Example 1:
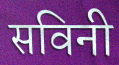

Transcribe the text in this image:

सविनी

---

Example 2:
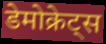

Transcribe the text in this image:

डेमोक्रेट्स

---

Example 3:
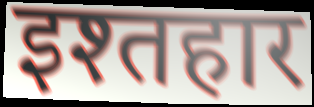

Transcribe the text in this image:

इश्तहार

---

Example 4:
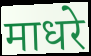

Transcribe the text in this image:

माधरे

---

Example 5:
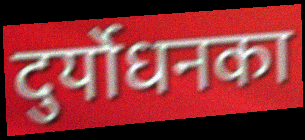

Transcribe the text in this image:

दुर्योधनका